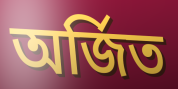
অর্জিত